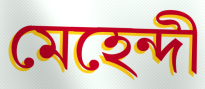
মেহেন্দী